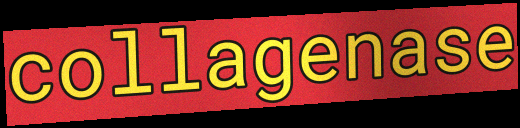
collagenase